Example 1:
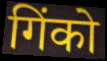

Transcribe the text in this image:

गिंको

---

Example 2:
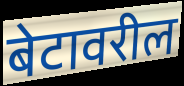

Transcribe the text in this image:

बेटावरील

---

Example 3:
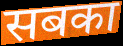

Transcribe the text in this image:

सबका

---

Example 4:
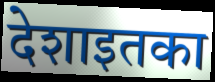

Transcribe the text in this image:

देशाइतका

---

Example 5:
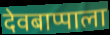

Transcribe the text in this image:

देवबाप्पाला